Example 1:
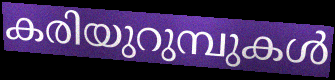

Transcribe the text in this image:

കരിയുറുമ്പുകൾ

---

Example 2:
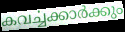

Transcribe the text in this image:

കവൎച്ചക്കാർക്കും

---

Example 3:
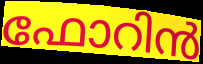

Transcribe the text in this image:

ഫോറിൻ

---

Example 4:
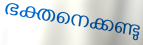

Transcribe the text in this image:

ഭക്തനെക്കണ്ടു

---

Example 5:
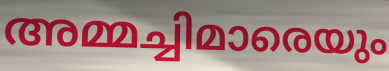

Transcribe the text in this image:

അമ്മച്ചിമാരെയും